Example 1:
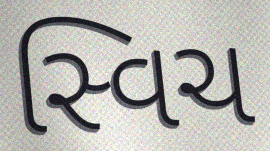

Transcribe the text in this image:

સ્વિચ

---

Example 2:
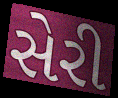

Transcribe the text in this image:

સેરી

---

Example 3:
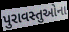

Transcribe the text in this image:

પુરાવસ્તુઓના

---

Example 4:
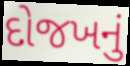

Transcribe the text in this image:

દોજખનું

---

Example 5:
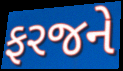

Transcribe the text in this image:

ફરજને